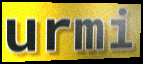
urmi